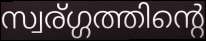
സ്വര്ഗ്ഗത്തിന്റെ